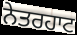
ਨੇਤਰਹਾਟ